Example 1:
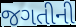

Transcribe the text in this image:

જગતીની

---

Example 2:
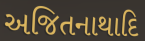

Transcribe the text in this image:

અજિતનાથાદિ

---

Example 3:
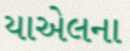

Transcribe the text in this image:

યાએલના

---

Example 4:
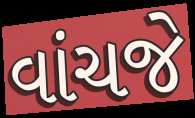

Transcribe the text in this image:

વાંચજે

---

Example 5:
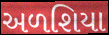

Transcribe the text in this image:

અળશિયા